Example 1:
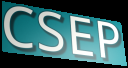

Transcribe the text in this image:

CSEP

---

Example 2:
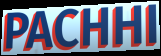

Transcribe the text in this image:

PACHHI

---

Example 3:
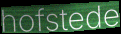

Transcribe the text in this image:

hofstede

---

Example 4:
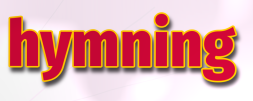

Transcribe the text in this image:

hymning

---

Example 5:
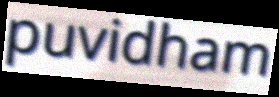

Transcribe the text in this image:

puvidham